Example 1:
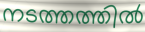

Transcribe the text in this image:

നടത്തത്തിൽ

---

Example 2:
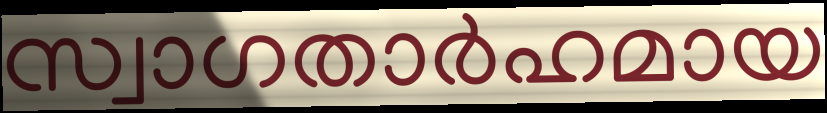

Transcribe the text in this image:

സ്വാഗതാർഹമായ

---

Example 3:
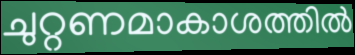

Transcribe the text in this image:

ചുറ്റണമാകാശത്തിൽ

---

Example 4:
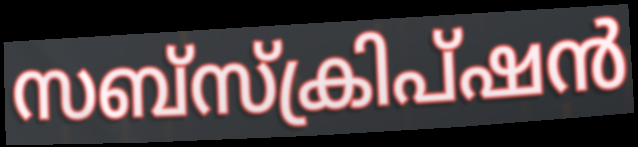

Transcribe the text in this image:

സബ്സ്ക്രിപ്ഷൻ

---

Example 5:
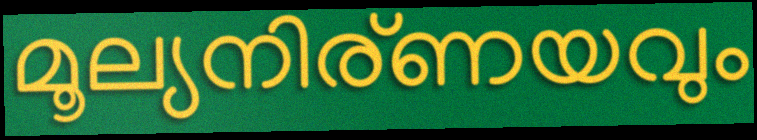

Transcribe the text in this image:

മൂല്യനിര്ണയവും